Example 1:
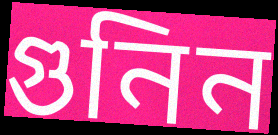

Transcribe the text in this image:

গুনিন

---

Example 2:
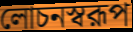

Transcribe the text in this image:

লোচনস্বরূপ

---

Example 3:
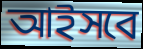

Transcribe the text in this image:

আইসবে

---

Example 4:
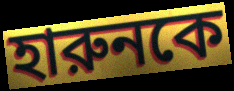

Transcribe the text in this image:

হারুনকে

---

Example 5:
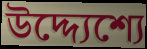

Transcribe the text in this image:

উদ্দ্যেশ্যে